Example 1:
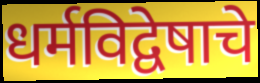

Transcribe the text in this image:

धर्मविद्वेषाचे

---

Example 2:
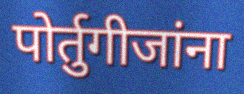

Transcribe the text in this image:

पोर्तुगीजांना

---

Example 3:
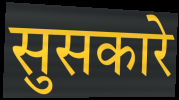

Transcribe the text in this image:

सुसकारे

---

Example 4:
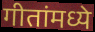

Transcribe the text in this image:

गीतांमध्ये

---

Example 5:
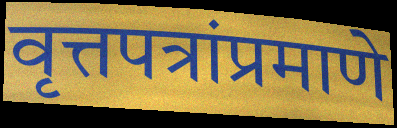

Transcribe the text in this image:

वृत्तपत्रांप्रमाणे